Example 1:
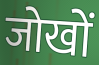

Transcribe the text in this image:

जोखों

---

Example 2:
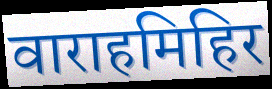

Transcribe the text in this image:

वाराहमिहिर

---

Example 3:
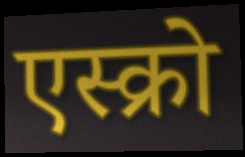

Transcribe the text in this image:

एस्क्रो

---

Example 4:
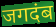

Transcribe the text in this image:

जगदंब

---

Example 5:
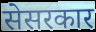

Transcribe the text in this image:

सेसरकार